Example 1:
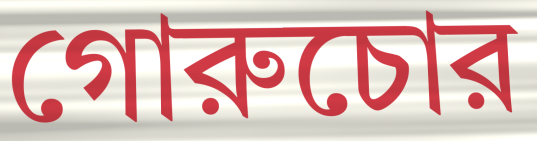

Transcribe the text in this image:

গোরুচোর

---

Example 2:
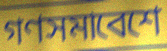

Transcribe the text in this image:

গণসমাবেশে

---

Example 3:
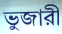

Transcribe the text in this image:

ভুজারী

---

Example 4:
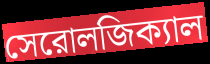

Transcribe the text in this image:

সেরোলজিক্যাল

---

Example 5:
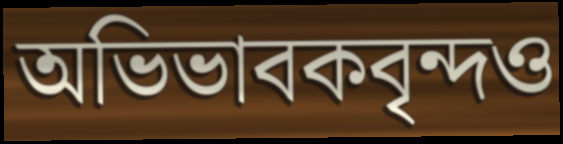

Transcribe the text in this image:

অভিভাবকবৃন্দও